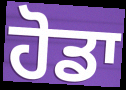
ਹੋਡਾ